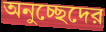
অনুচ্ছেদের